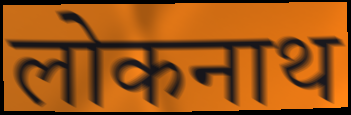
लोकनाथ